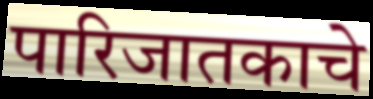
पारिजातकाचे